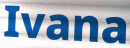
Ivana